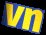
vn